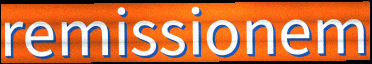
remissionem